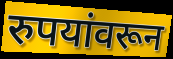
रुपयांवरून